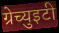
ग्रेच्युइटी